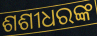
ଶଶୀଧରଙ୍କ